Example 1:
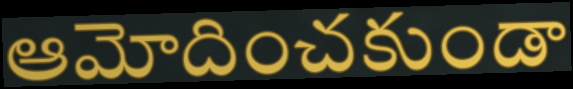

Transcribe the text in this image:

ఆమోదించకుండా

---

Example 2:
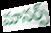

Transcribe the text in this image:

మానర్స్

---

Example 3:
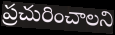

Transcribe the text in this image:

ప్రచురించాలని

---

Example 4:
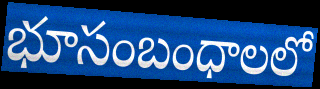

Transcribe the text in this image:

భూసంబంధాలలో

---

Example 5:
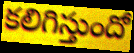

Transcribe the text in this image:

కలిగిస్తుందో